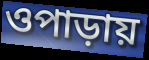
ওপাড়ায়